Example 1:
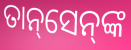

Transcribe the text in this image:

ତାନ୍‌ସେନ୍‌ଙ୍କ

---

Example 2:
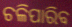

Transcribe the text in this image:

ଚଳିପାରିବ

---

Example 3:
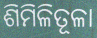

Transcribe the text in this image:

ଶିମିଳିତୂଳା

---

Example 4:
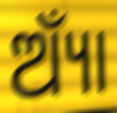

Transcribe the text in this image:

ଅ୍ୟାଁ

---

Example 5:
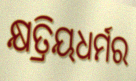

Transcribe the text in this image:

କ୍ଷତ୍ରିୟଧର୍ମର